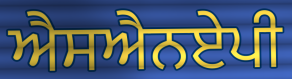
ਐਸਐਨਏਪੀ